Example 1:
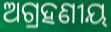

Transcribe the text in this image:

ଅଗ୍ରହଣୀୟ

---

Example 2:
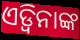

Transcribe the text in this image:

ଏଡ୍ୱିନାଙ୍କ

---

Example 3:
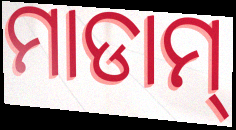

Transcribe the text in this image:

ମାଡାମ୍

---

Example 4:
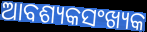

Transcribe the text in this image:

ଆବଶ୍ୟକସଂଖ୍ୟକ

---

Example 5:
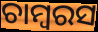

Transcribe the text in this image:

ଚାମ୍ବରସ